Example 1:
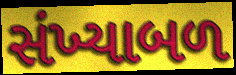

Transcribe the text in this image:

સંખ્યાબળ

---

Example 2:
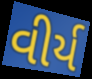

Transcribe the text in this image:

વીર્ય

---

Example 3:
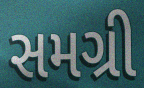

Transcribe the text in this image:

સમગ્રી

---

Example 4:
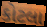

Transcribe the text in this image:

કોટલા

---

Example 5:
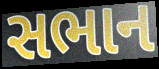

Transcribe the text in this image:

સભાન